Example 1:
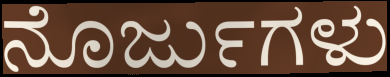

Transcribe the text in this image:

ನೊರ್ಜುಗಳು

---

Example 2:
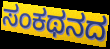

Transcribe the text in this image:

ಸಂಕಥನದ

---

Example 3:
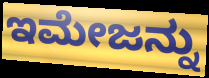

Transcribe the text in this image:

ಇಮೇಜನ್ನು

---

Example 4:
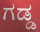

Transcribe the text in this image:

ಗಡ್ಡ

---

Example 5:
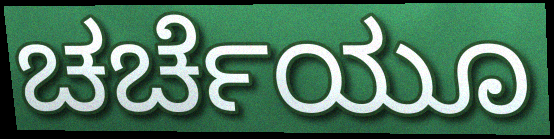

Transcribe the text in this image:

ಚರ್ಚೆಯೂ